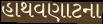
હાથવણાટના